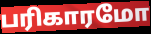
பரிகாரமோ